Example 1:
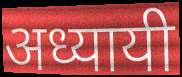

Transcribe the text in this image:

अध्यायी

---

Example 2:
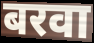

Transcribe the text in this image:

बरवा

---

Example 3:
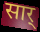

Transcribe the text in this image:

सार्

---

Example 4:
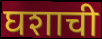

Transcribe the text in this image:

घशाची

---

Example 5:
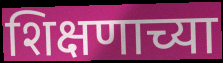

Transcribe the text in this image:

शिक्षणाच्या